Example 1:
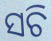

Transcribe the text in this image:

ସଚି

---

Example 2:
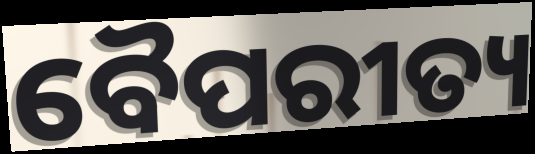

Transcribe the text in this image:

ବୈପରୀତ୍ୟ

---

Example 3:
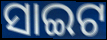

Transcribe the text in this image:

ସାଇଟ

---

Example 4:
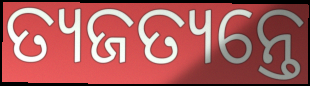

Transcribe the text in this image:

ତ୍ୟଜତ୍ୟନ୍ତେ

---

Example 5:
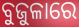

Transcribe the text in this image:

ବୁଜୁଳାରେ